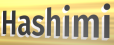
Hashimi